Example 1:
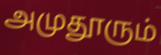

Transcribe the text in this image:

அமுதூரும்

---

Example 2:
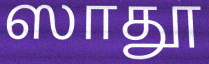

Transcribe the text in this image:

ஸாதூ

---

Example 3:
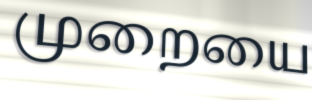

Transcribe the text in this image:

முறையை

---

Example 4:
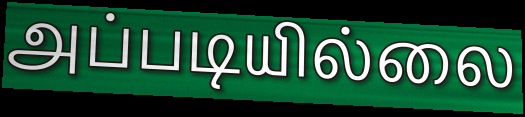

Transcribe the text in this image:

அப்படியில்லை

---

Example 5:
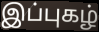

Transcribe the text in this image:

இப்புகழ்